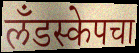
लँडस्केपचा